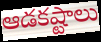
ఆడకష్టాలు